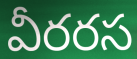
వీరరస